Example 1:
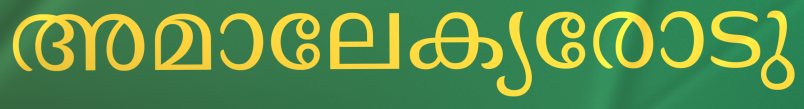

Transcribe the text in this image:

അമാലേക്യരോടു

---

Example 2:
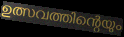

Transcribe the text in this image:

ഉത്സവത്തിന്റെയും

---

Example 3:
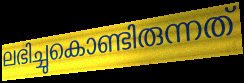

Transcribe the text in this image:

ലഭിച്ചുകൊണ്ടിരുന്നത്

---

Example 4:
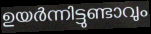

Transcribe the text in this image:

ഉയർന്നിട്ടുണ്ടാവും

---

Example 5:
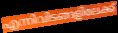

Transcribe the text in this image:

എന്നിവിടങ്ങളിലേക്ക്